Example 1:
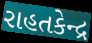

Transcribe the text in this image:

રાહતકેન્દ્ર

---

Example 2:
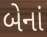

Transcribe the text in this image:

બેનાં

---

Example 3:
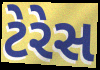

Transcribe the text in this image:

ટેરેસ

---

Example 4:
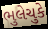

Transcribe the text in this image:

ભુલેચુકે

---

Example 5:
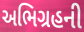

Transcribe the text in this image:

અભિગ્રહની